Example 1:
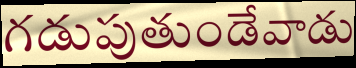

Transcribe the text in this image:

గడుపుతుండేవాడు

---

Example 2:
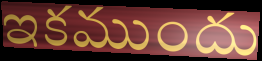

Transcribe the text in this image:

ఇకముందు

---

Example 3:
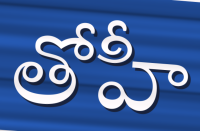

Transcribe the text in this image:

తోహీ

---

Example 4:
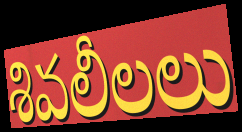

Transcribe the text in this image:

శివలీలలు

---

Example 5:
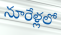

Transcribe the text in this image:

నూరేళ్లలో